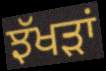
ਝੱਖੜਾਂ